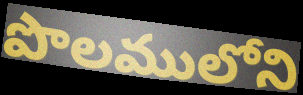
పొలములోని